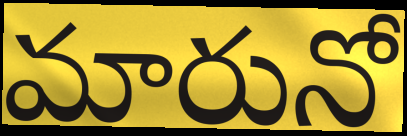
మారునో